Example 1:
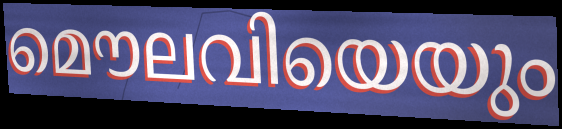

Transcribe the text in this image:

മൌലവിയെയും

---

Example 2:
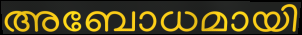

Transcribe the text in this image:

അബോധമായി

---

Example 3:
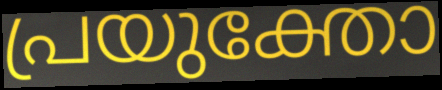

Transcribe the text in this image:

പ്രയുക്തോ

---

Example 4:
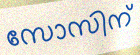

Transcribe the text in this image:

സോസിന്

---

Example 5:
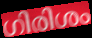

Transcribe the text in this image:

ഗിരിശം